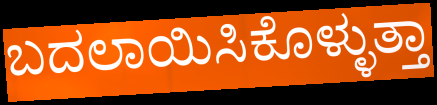
ಬದಲಾಯಿಸಿಕೊಳ್ಳುತ್ತಾ